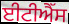
ਈਟੀਐੱਸ